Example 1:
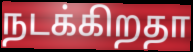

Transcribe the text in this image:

நடக்கிறதா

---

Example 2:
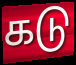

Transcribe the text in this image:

கடு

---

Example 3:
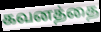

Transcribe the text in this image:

கவனத்தை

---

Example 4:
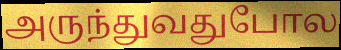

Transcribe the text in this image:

அருந்துவதுபோல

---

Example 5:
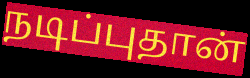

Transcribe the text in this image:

நடிப்புதான்